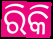
ରିକି